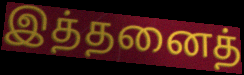
இத்தனைத்